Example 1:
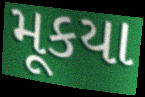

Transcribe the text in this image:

મૂકયા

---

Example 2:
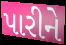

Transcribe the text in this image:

પારીને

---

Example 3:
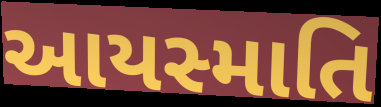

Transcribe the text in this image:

આયસ્માતિ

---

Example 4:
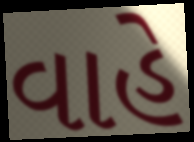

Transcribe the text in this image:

વાહે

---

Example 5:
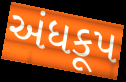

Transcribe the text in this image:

અંધકૂપ